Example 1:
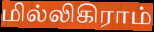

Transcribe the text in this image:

மில்லிகிராம்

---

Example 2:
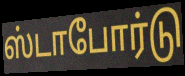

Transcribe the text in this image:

ஸ்டாபோர்டு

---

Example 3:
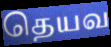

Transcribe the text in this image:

தெயவ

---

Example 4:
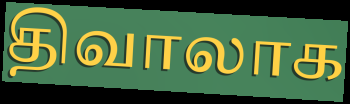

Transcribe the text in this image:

திவாலாக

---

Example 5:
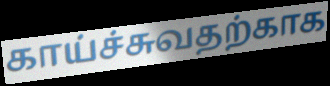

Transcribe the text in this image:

காய்ச்சுவதற்காக